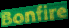
Bonfire